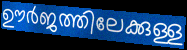
ഊർജത്തിലേക്കുള്ള